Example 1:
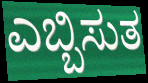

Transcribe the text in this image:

ಎಬ್ಬಿಸುತ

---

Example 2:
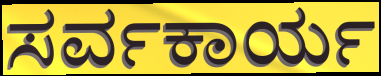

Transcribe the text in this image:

ಸರ್ವಕಾರ್ಯ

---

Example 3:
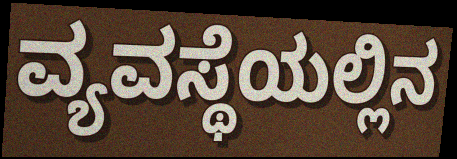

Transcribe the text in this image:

ವ್ಯವಸ್ಥೆಯಲ್ಲಿನ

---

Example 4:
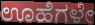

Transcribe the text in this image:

ಊಹೆಗಳೇ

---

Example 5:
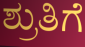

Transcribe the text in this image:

ಶ್ರುತಿಗೆ